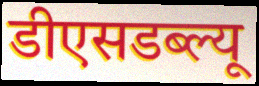
डीएसडब्ल्यू